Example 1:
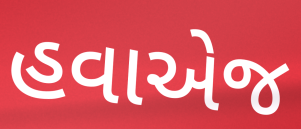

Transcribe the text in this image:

હવાએજ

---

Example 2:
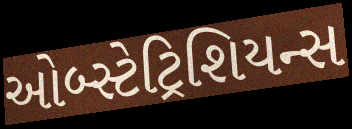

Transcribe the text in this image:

ઓબ્સ્ટેટ્રિશિયન્સ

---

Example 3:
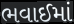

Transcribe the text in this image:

ભવાઈમાં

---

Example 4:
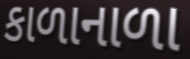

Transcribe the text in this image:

કાળાનાળા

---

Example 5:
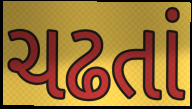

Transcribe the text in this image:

ચઢતાં